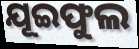
ଯୂଇଫୁଲ